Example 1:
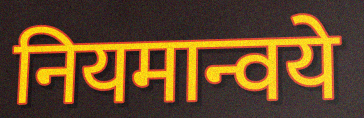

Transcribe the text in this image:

नियमान्वये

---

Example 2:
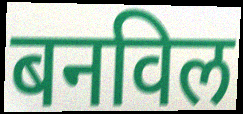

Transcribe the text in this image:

बनविल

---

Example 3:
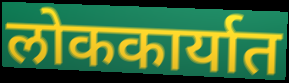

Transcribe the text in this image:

लोककार्यात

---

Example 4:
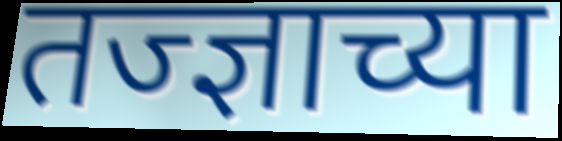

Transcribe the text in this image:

तज्ज्ञाच्या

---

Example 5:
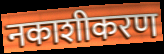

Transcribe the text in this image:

नकाशीकरण